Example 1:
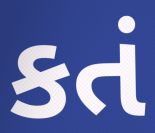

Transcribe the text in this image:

કતં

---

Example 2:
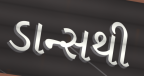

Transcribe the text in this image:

ડાન્સથી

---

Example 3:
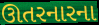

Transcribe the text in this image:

ઊતરનારના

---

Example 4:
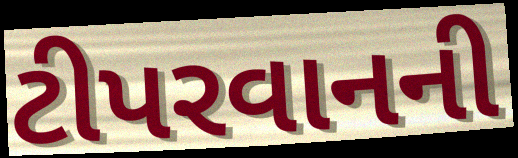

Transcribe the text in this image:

ટીપરવાનની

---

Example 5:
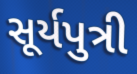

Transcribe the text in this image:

સૂર્યપુત્રી